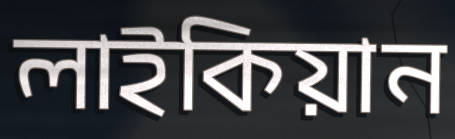
লাইকিয়ান